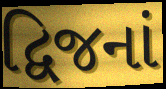
દ્વિજનાં